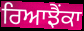
ਰਿਆਝੈਂਕਾ